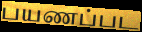
பயணப்பட